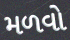
મળવો